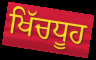
ਖਿੱਚਧੂਹ